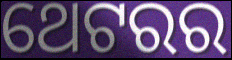
ଥେଟରର